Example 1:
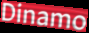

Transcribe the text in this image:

Dinamo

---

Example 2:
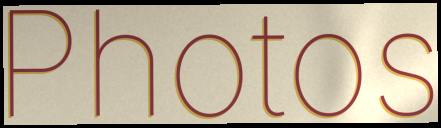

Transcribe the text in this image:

Photos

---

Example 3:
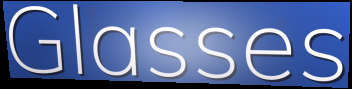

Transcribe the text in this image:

Glasses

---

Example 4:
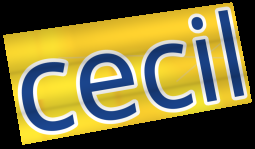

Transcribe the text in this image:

cecil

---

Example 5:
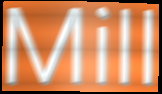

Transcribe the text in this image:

Mill